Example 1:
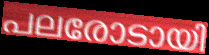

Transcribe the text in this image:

പലരോടായി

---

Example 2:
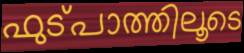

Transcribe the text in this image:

ഫുട്പാത്തിലൂടെ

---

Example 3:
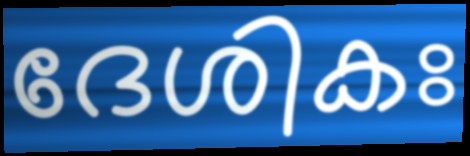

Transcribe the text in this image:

ദേശികഃ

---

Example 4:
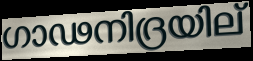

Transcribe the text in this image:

ഗാഢനിദ്രയില്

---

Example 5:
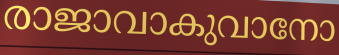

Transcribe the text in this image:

രാജാവാകുവാനോ